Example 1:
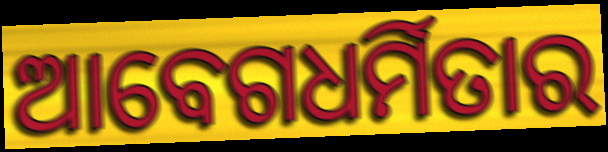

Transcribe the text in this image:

ଆବେଗଧର୍ମିତାର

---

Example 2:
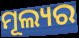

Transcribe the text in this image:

ମୂଲ୍ୟର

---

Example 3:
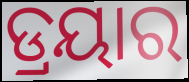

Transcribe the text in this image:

ଡ୍ରୟାର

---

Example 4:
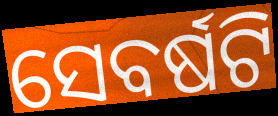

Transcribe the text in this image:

ସେବର୍ଷଟି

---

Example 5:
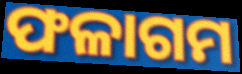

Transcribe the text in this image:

ଫଳାଗମ